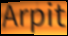
Arpit